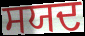
ਸਯਦ